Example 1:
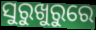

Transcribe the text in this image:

ସୁରୁଖୁରୁରେ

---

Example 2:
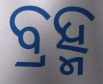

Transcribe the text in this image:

ବ୍ରହ୍ମ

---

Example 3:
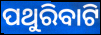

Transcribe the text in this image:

ପଥୁରିବାଟି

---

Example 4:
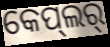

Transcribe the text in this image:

କେପ୍‌ଲର୍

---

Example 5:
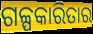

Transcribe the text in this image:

ଗଳ୍ପକାରିତାର